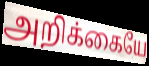
அறிக்கையே